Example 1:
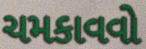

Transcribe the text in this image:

ચમકાવવો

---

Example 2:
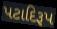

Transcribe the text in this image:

પટાદિરૂપ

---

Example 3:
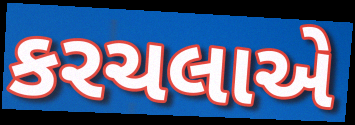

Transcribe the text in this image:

કરચલાએ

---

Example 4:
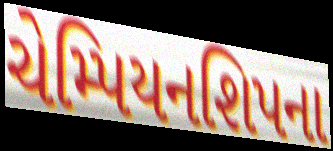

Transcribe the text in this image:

ચેમ્પિયનશિપના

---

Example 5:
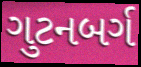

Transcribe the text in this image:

ગુટનબર્ગ